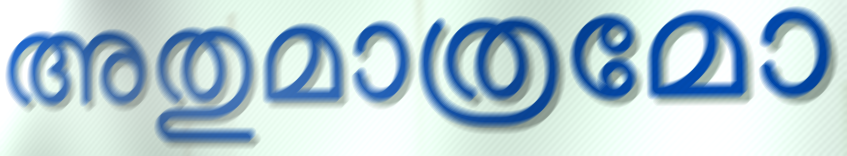
അതുമാത്രമോ